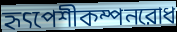
হৃৎপেশীকম্পনরোধ